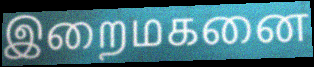
இறைமகனை